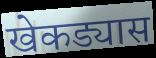
खेकड्यास